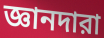
জ্ঞানদারা